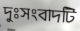
দুঃসংবাদটি